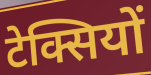
टेक्सियों